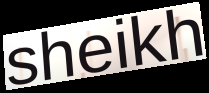
sheikh